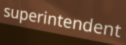
superintendent